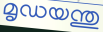
മൃഡയന്തു